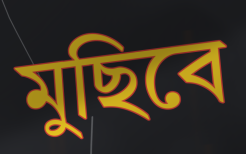
মুছিবে